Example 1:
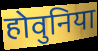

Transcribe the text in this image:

होवुनिया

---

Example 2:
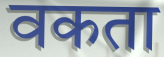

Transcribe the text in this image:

वकता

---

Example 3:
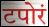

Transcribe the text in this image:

टपोरं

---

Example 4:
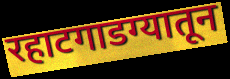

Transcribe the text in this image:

रहाटगाडग्यातून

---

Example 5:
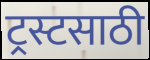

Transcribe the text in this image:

ट्रस्टसाठी